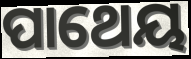
ପାଥେୟ